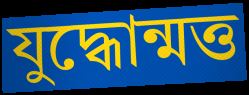
যুদ্ধোন্মত্ত